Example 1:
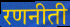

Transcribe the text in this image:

रणनीती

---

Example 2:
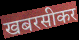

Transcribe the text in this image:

खबरसीकर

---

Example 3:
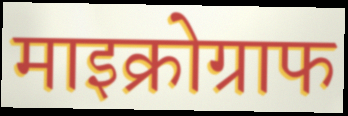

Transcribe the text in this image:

माइक्रोग्राफ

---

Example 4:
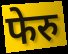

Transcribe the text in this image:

फेरु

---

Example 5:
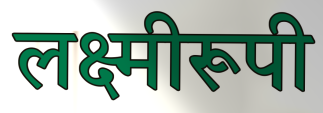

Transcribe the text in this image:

लक्ष्मीरूपी